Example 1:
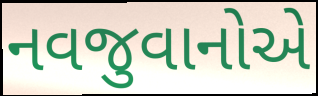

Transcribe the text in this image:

નવજુવાનોએ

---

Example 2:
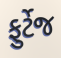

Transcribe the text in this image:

ફુર્ટેજ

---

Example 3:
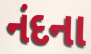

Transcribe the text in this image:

નંદના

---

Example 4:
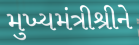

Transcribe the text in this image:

મુખ્યમંત્રીશ્રીને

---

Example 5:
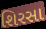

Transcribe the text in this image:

શિરસા